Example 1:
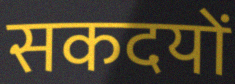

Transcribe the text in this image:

सकदयों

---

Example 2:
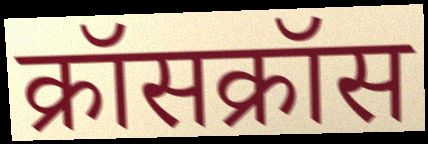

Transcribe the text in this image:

क्रॉसक्रॉस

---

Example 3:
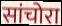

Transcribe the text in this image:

सांचोरा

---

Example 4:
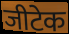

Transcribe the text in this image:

जीटेक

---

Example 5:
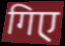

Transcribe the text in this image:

गिए